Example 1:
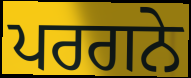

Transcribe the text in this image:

ਪਰਗਨੇ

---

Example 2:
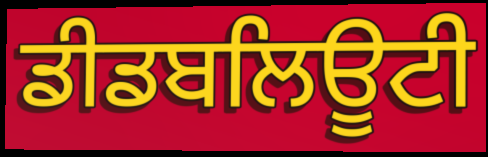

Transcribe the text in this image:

ਡੀਡਬਲਿਊਟੀ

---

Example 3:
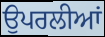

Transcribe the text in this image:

ਉਪਰਲੀਆਂ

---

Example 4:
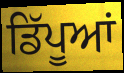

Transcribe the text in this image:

ਡਿੱਪੂਆਂ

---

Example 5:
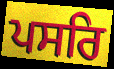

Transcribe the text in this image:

ਪਸਰਿ